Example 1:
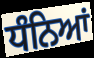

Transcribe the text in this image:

ਧੰਨਿਆਂ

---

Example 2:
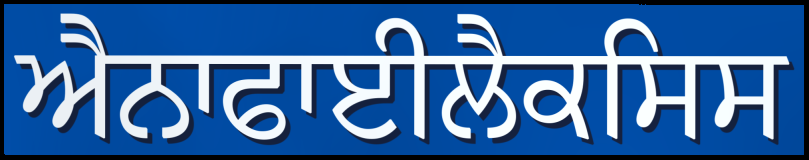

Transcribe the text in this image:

ਐਨਾਫਾਈਲੈਕਸਿਸ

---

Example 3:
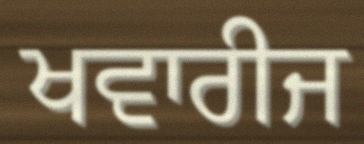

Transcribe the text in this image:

ਖਵਾਰੀਜ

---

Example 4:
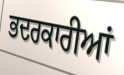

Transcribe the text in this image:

ਭਦਰਕਾਰੀਆਂ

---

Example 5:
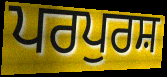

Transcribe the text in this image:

ਪਰਪੁਰਸ਼